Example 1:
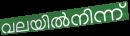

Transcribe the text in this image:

വലയിൽനിന്ന്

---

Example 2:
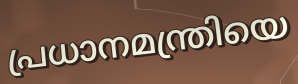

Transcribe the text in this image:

പ്രധാനമന്ത്രിയെ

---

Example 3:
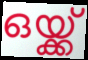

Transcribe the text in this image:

ഒയ്ക്ക്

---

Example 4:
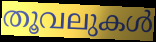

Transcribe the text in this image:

തൂവലുകൾ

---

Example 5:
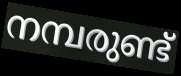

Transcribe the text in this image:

നമ്പരുണ്ട്